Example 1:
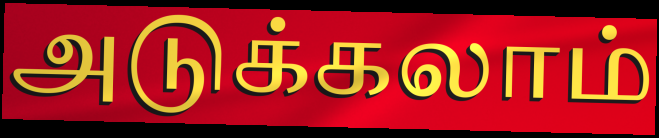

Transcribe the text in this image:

அடுக்கலாம்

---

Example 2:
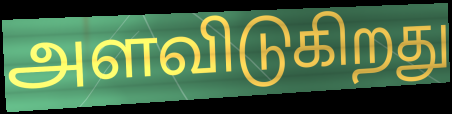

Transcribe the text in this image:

அளவிடுகிறது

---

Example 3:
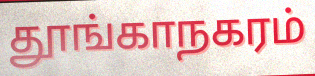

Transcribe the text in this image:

தூங்காநகரம்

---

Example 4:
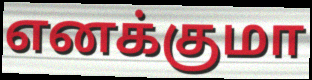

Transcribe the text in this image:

எனக்குமா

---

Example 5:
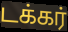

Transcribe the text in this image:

டக்கர்